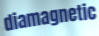
diamagnetic